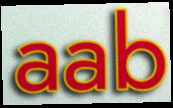
aab